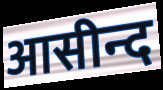
आसीन्द